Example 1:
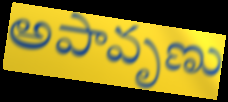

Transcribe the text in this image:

అపావృణు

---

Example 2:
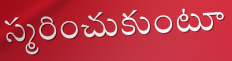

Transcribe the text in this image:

స్మరించుకుంటూ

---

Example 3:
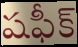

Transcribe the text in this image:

షఫీక్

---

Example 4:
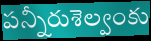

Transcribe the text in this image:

పన్నీరుశెల్వంకు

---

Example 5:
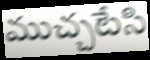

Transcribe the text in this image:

ముచ్చటేసి